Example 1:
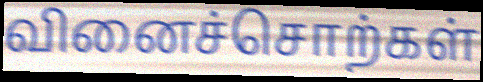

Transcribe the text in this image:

வினைச்சொற்கள்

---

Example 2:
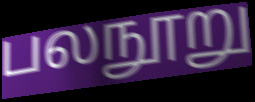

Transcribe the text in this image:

பலநூறு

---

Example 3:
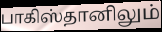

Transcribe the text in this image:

பாகிஸ்தானிலும்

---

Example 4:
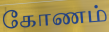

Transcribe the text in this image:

கோணம்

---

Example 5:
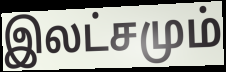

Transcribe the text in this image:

இலட்சமும்